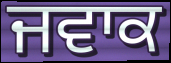
ਜਵਾਕ